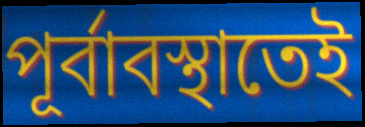
পূর্বাবস্থাতেই